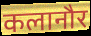
कलानौर